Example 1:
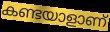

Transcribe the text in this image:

കണ്ടയാളാണ്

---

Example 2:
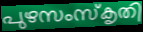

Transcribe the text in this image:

പുഴസംസ്കൃതി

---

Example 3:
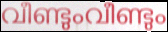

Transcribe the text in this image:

വീണ്ടുംവീണ്ടും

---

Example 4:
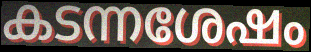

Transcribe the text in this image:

കടന്നശേഷം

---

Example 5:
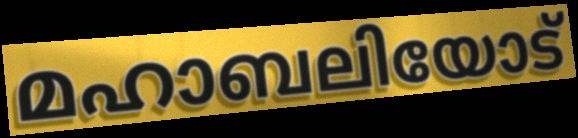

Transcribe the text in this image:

മഹാബലിയോട്